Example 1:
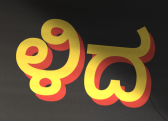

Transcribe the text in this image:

ಳಿದ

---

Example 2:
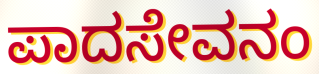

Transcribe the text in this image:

ಪಾದಸೇವನಂ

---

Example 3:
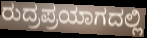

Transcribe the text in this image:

ರುದ್ರಪ್ರಯಾಗದಲ್ಲಿ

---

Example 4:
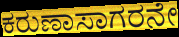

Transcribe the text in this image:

ಕರುಣಾಸಾಗರನೇ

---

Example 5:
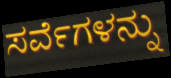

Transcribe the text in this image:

ಸರ್ವೆಗಳನ್ನು